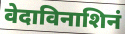
वेदाविनाशिनं